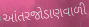
આંતરજોડાણવાળી